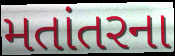
મતાંતરના